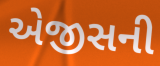
એજીસની